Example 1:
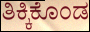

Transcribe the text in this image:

ತಿಕ್ಕಿಕೊಂಡ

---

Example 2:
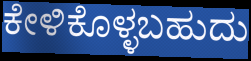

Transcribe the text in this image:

ಕೇಳಿಕೊಳ್ಳಬಹುದು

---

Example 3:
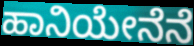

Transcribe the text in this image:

ಹಾನಿಯೇನೆನೆ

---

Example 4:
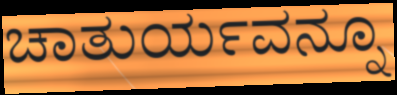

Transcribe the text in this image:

ಚಾತುರ್ಯವನ್ನೂ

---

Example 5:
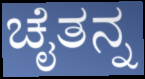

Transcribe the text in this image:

ಚೈತನ್ನ